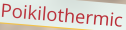
Poikilothermic